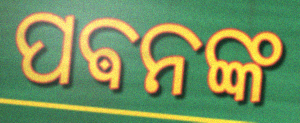
ପଵନଙ୍କ